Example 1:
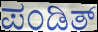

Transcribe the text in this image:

ಪಂಡಿತ್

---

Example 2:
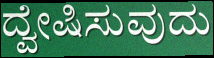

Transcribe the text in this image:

ದ್ವೇಷಿಸುವುದು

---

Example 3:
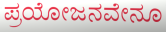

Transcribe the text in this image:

ಪ್ರಯೋಜನವೇನೂ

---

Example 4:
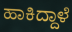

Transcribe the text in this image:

ಹಾಕಿದ್ದಾಳೆ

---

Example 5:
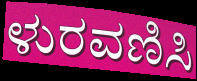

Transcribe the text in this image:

ಳುರವಣಿಸಿ